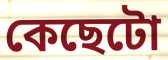
কেছেটো